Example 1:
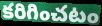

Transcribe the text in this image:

కరిగించటం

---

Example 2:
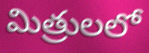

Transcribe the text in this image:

మిత్రులలో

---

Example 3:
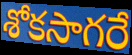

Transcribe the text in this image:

శోకసాగరే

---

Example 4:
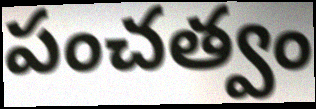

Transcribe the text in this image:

పంచత్వం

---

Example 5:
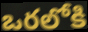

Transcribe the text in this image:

ఒరలోకి